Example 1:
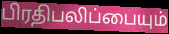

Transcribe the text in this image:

பிரதிபலிப்பையும்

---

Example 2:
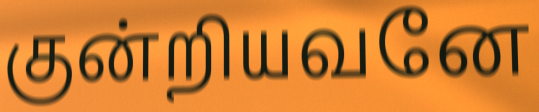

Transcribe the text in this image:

குன்றியவனே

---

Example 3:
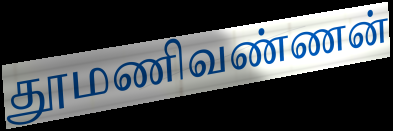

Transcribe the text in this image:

தூமணிவண்ணன்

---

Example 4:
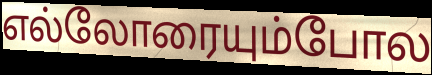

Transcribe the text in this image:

எல்லோரையும்போல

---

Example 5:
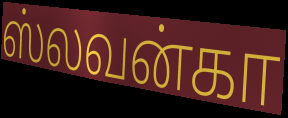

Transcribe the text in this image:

ஸ்லவன்கா